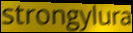
strongylura